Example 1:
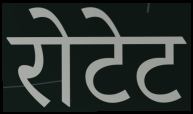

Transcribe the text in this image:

रोटेट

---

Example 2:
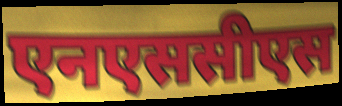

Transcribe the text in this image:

एनएससीएस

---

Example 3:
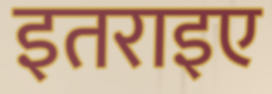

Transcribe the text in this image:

इतराइए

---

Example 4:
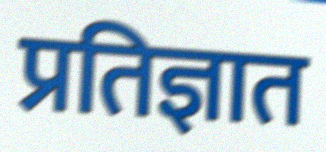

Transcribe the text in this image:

प्रतिज्ञात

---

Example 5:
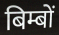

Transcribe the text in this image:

बिम्बों